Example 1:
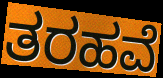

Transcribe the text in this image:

ತರಹವೆ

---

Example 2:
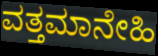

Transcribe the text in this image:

ವತ್ತಮಾನೇಹಿ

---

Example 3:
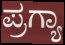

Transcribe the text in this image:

ಪ್ರಗ್ಯಾ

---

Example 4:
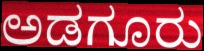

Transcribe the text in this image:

ಅಡಗೂರು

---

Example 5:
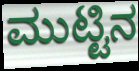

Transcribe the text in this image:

ಮುಟ್ಟಿನ